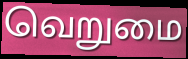
வெறுமை